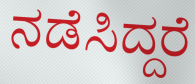
ನಡೆಸಿದ್ದರೆ